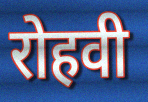
रोहवी